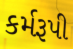
કર્મરૂપી